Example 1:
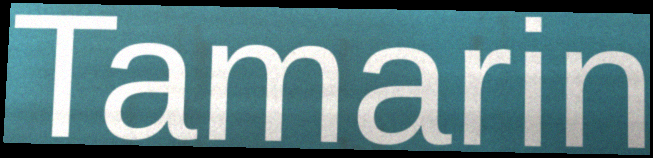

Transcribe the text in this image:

Tamarin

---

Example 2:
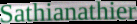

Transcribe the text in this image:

Sathianathier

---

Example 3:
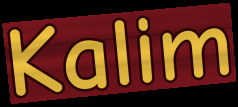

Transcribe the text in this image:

Kalim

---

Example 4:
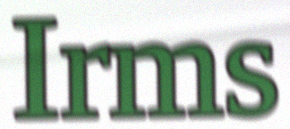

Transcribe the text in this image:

Irms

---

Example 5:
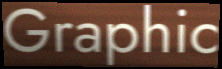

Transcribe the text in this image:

Graphic